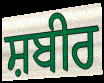
ਸ਼ਬੀਰ